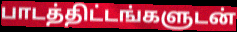
பாடத்திட்டங்களுடன்